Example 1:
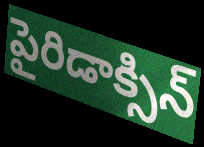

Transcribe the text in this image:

పైరిడాక్సిన్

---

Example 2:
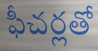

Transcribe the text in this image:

ఫీచర్లతో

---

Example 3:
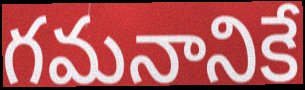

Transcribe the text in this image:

గమనానికే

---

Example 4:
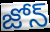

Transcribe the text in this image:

జోన్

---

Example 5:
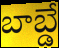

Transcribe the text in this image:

బాబ్డే